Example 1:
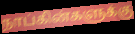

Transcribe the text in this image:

நாப்கின்களுக்கு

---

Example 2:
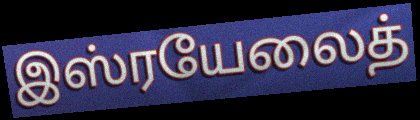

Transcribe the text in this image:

இஸ்ரயேலைத்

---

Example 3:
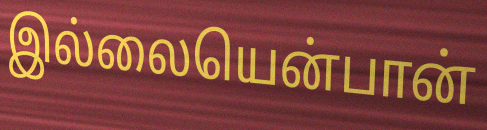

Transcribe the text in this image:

இல்லையென்பான்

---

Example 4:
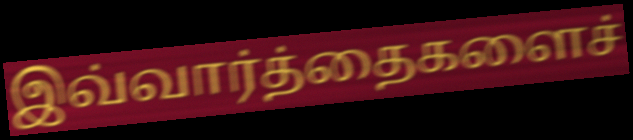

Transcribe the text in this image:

இவ்வார்த்தைகளைச்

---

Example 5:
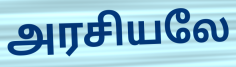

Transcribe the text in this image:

அரசியலே